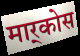
मार्कोस